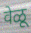
वेळू